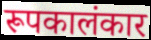
रूपकालंकार